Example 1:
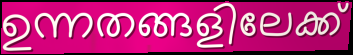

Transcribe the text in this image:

ഉന്നതങ്ങളിലേക്ക്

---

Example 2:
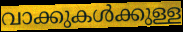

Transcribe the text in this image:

വാക്കുകൾക്കുള്ള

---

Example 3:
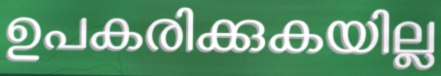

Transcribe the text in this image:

ഉപകരിക്കുകയില്ല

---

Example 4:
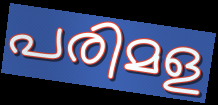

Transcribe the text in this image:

പരിമള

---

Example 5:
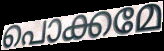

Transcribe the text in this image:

പൊക്കമേ